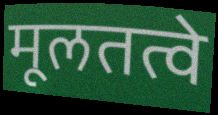
मूलतत्वे